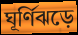
ঘূর্ণিঝড়ে